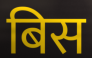
बिस